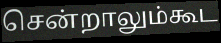
சென்றாலும்கூட